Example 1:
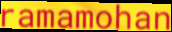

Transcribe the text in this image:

ramamohan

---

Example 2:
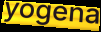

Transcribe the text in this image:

yogena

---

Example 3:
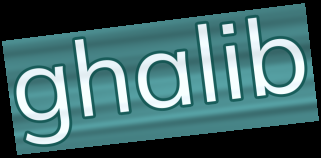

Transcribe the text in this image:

ghalib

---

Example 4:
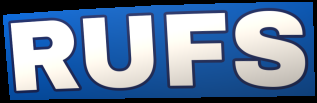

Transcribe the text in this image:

RUFS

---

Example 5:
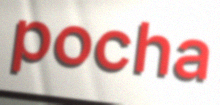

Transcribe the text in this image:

pocha